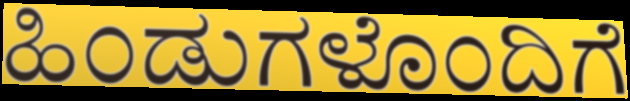
ಹಿಂಡುಗಳೊಂದಿಗೆ